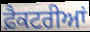
ਫ਼ੈਕਟਰੀਆਂ